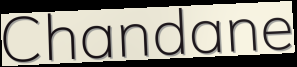
Chandane